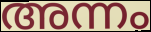
അന്നം